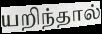
யறிந்தால்